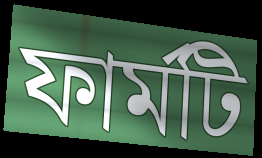
ফার্মটি